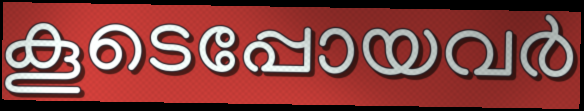
കൂടെപ്പോയവർ